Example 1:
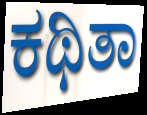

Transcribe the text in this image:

ಕಥಿತಾ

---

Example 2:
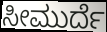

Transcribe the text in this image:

ಸೀಮುರ್ದೆ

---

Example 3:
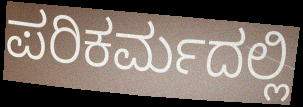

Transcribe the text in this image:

ಪರಿಕರ್ಮದಲ್ಲಿ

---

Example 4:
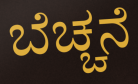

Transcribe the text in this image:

ಬೆಚ್ಚನೆ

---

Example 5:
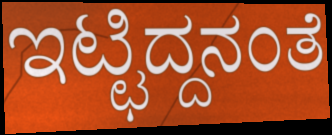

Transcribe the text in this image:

ಇಟ್ಟಿದ್ದನಂತೆ